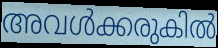
അവൾക്കരുകിൽ